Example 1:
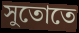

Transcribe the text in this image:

সুতোতে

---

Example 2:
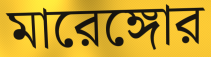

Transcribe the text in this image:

মারেঙ্গোর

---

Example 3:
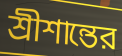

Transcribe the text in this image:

শ্রীশান্তের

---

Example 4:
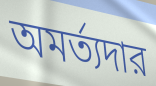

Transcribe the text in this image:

অমর্ত্যদার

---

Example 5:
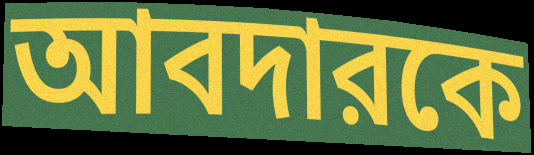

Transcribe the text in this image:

আবদারকে